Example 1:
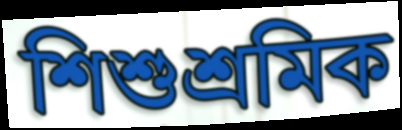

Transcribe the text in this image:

শিশুশ্রমিক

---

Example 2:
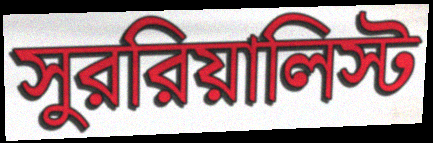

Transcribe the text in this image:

সুররিয়ালিস্ট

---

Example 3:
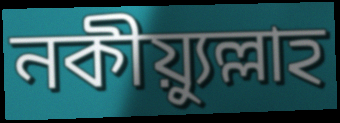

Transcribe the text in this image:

নকীয়্যুল্লাহ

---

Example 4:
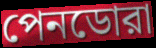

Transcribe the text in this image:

পেনডোরা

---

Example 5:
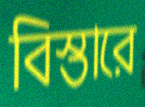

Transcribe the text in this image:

বিস্তারে